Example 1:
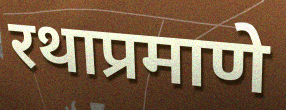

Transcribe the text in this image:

रथाप्रमाणे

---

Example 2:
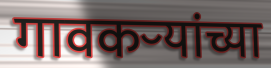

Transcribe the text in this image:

गावकऱ्यांच्या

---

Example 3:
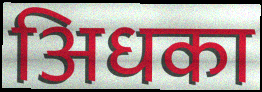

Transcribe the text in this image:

अिधका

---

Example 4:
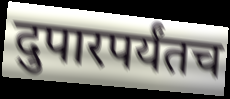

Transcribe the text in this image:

दुपारपर्यंतच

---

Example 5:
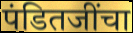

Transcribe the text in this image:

पंडितजींचा